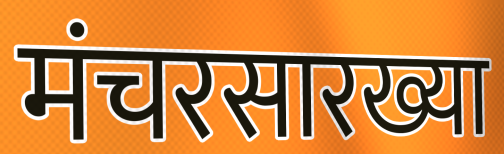
मंचरसारख्या